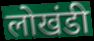
लोखंडी